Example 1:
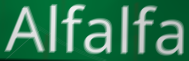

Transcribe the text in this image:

Alfalfa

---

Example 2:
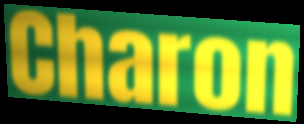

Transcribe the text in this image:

Charon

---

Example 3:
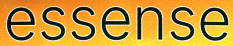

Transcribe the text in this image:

essense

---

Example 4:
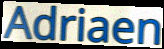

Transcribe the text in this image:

Adriaen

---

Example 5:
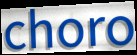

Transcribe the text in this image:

choro